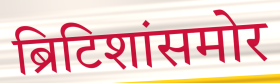
ब्रिटिशांसमोर